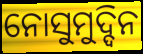
ନୋସୁମୁଦ୍ଦିନ